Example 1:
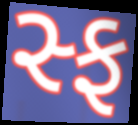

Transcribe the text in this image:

સ્ફ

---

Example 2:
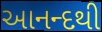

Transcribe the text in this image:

આનન્દથી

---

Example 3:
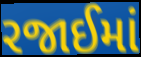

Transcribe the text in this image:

રજાઈમાં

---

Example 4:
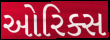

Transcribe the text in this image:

ઓરિક્સ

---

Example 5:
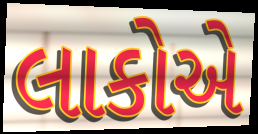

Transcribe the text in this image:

લાકોએ